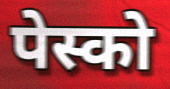
पेस्को